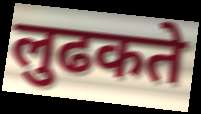
लुढकते